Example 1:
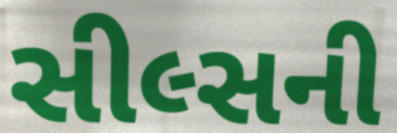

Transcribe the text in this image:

સીલ્સની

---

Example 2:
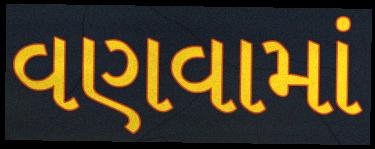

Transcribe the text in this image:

વણવામાં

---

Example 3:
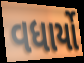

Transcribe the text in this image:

વધાર્યો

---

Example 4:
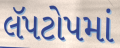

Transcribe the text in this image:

લૅપટોપમાં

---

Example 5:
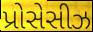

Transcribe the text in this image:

પ્રોસેસીઝ